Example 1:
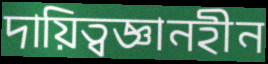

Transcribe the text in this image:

দায়িত্বজ্ঞানহীন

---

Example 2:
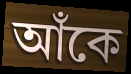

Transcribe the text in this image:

আঁকে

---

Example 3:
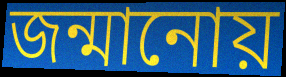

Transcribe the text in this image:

জন্মানোয়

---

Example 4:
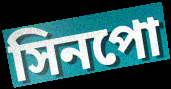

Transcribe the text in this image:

সিনপো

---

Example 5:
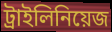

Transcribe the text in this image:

ট্রাইলিনিয়েজ